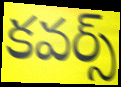
కవర్స్